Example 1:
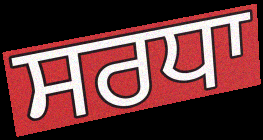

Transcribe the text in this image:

ਸਰਧਾ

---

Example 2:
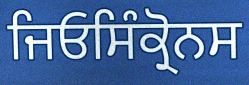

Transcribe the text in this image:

ਜਿਓਸਿੰਕ੍ਰੋਨਸ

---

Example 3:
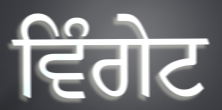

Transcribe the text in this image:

ਵਿੰਗੇਟ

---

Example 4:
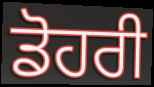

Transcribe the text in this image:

ਡੋਹਰੀ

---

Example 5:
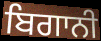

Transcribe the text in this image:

ਬਿਗਾਨੀ